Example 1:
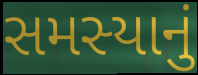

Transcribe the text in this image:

સમસ્યાનું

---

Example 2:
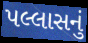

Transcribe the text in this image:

પલ્લાસનું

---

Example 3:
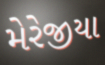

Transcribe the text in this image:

મેરેજીયા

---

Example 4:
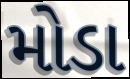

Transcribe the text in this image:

મોડા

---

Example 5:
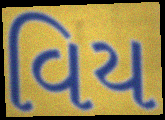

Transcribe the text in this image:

વિય